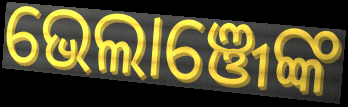
ଭେଲାଞ୍ଜେଙ୍କ